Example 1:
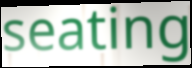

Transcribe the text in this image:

seating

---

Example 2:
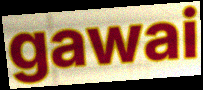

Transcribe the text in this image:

gawai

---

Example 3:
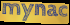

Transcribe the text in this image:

mynac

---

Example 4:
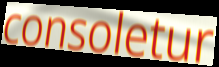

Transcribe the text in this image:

consoletur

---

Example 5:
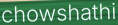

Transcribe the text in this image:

chowshathi